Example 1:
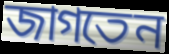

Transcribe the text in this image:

জাগতেন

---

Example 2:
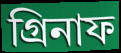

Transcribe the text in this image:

গ্রিনাফ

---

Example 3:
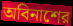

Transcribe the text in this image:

অবিনাশের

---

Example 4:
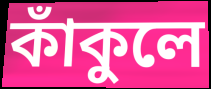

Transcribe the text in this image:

কাঁকুলে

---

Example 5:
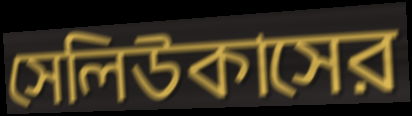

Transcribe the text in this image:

সেলিউকাসের